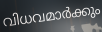
വിധവമാർക്കും